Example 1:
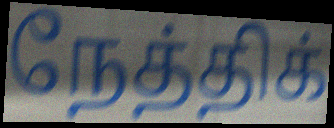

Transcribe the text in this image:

நேத்திக்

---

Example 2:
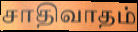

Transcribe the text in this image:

சாதிவாதம்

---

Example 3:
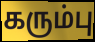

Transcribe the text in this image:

கரும்பு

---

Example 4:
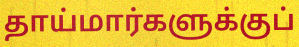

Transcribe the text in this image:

தாய்மார்களுக்குப்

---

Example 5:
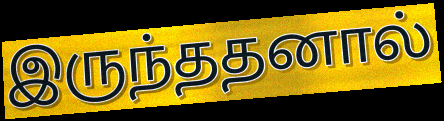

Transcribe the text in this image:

இருந்ததனால்